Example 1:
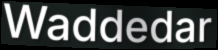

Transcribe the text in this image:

Waddedar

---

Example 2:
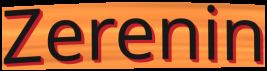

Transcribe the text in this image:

Zerenin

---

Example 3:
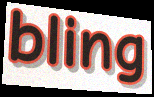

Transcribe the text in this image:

bling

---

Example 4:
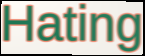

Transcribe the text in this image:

Hating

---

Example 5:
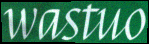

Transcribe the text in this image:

wastuo